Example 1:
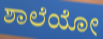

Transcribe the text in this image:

ಶಾಲೆಯೋ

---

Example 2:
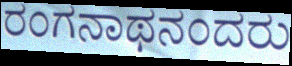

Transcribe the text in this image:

ರಂಗನಾಥನಂದರು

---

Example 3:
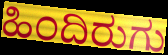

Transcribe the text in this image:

ಹಿಂದಿರುಗು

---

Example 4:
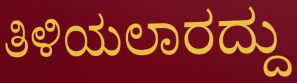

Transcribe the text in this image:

ತಿಳಿಯಲಾರದ್ದು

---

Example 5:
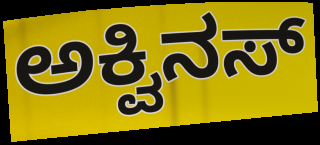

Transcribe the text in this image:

ಅಕ್ವಿನಸ್